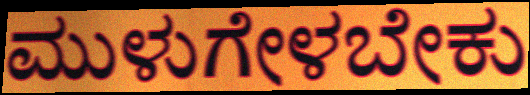
ಮುಳುಗೇಳಬೇಕು